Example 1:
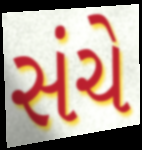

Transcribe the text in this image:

સંચે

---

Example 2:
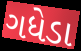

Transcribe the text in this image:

ગધેડા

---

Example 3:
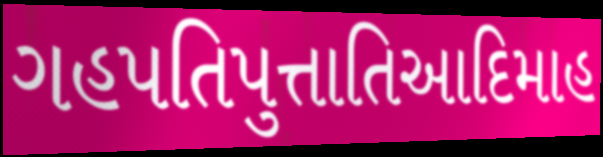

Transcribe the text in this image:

ગહપતિપુત્તાતિઆદિમાહ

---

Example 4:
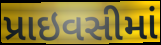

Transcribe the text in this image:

પ્રાઇવસીમાં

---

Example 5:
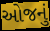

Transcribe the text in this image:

ઓજનું